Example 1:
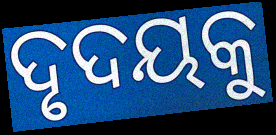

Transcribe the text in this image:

ଦୃଦୟକୁ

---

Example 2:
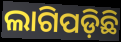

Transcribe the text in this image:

ଲାଗିପଡ଼ିଛି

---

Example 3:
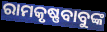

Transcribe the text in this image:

ରାମକୃଷ୍ଣବାବୁଙ୍କ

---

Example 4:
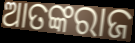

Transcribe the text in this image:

ଆତଙ୍କରାଜ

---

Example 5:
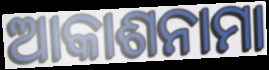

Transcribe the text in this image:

ଆକାଶନାମା